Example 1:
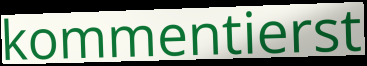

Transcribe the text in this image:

kommentierst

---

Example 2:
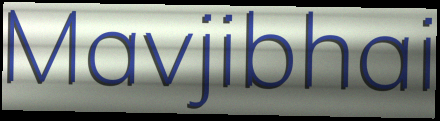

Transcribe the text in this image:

Mavjibhai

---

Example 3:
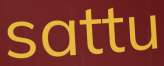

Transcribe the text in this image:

sattu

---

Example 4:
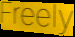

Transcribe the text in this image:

Freely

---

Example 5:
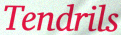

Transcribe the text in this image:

Tendrils